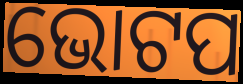
ଭୋଟପ